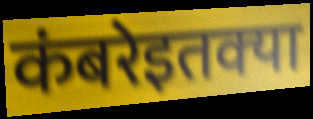
कंबरेइतक्या